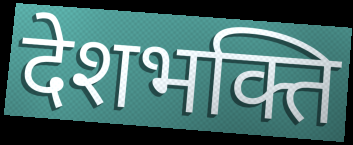
देशभक्ति